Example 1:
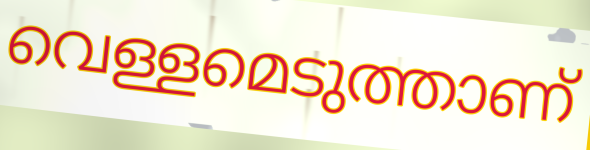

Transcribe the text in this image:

വെള്ളമെടുത്താണ്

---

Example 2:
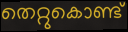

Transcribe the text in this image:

തെറ്റുകൊണ്ട്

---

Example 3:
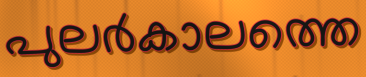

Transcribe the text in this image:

പുലർകാലത്തെ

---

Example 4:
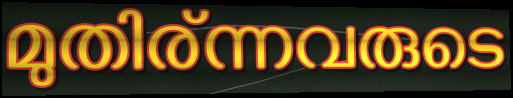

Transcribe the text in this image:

മുതിര്ന്നവരുടെ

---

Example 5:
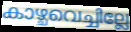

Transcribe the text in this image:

കാഴ്ചവെച്ചില്ലേ